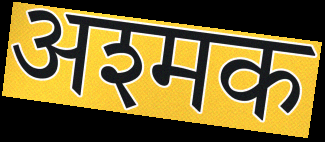
अश्मक